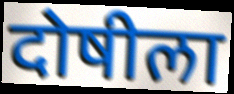
दोषीला